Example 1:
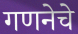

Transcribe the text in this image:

गणनेचे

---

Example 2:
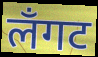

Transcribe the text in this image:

लँगट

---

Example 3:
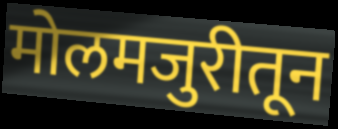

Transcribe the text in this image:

मोलमजुरीतून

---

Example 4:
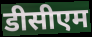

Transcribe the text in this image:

डीसीएम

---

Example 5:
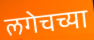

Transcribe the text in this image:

लगेचच्या